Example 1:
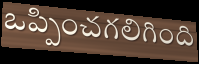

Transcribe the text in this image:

ఒప్పించగలిగింది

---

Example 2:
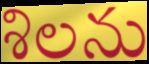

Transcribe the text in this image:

శిలను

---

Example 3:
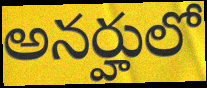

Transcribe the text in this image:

అనర్హులో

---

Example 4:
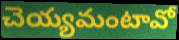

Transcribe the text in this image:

చెయ్యమంటావో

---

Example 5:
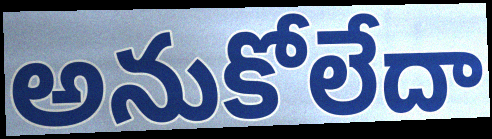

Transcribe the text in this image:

అనుకోలేదా